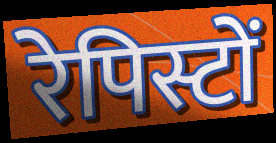
रेपिस्टों